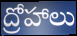
ద్రోహాలు